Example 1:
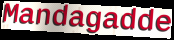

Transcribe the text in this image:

Mandagadde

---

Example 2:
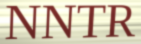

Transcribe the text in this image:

NNTR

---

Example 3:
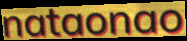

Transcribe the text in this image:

nataonao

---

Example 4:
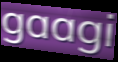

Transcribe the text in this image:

gaagi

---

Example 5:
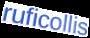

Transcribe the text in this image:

ruficollis